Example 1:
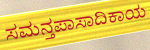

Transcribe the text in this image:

ಸಮನ್ತಪಾಸಾದಿಕಾಯ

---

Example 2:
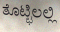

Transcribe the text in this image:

ತೊಟ್ಟಿಲಲ್ಲಿ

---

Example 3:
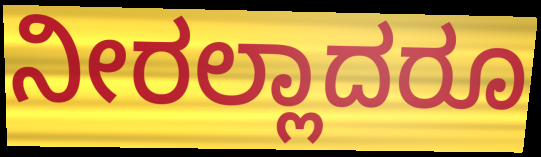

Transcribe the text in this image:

ನೀರಲ್ಲಾದರೂ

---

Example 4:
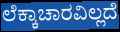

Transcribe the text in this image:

ಲೆಕ್ಕಾಚಾರವಿಲ್ಲದೆ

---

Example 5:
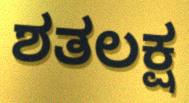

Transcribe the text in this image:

ಶತಲಕ್ಷ